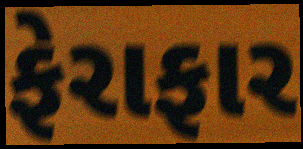
ફેરાફાર